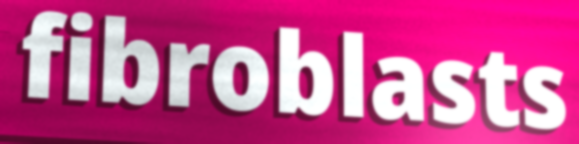
fibroblasts